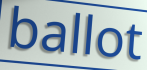
ballot